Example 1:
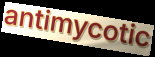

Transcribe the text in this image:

antimycotic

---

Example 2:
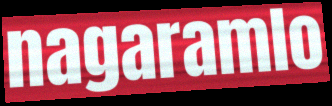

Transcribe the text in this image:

nagaramlo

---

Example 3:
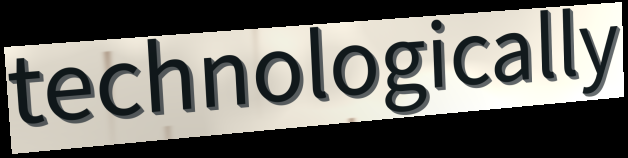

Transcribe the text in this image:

technologically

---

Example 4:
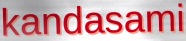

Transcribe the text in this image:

kandasami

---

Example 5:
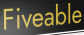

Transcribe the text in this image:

Fiveable